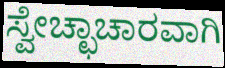
ಸ್ವೇಚ್ಛಾಚಾರವಾಗಿ